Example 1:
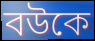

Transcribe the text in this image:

বউকে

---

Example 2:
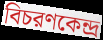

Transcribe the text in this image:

বিচরণকেন্দ্র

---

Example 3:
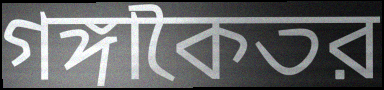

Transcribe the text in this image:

গঙ্গাকৈতর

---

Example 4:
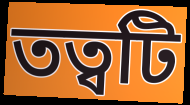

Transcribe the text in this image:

তত্বটি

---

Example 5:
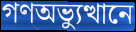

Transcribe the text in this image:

গণঅভ্যুত্থানে